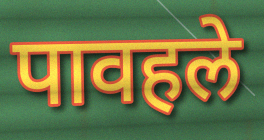
पावहले